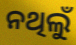
ନଥିଲୁଁ